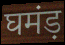
घमंड़